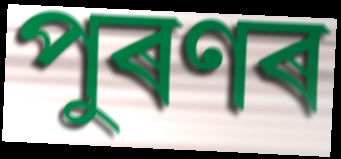
পুৰণৰ